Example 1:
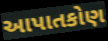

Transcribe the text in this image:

આપાતકોણ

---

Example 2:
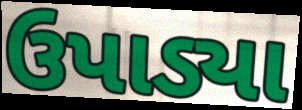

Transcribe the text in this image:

ઉપાડ્યા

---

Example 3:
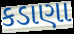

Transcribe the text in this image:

કડાણા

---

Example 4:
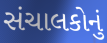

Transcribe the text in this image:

સંચાલકોનું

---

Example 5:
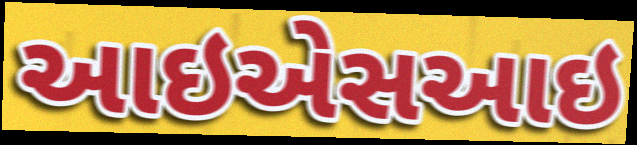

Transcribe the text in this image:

આઇએસઆઇ